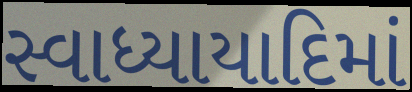
સ્વાધ્યાયાદિમાં